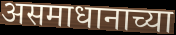
असमाधानाच्या